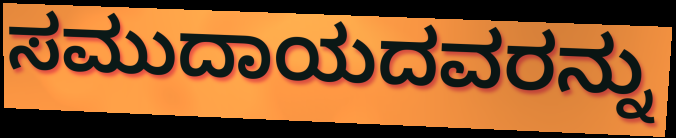
ಸಮುದಾಯದವರನ್ನು